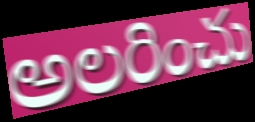
అలరించు